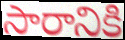
సారానికి